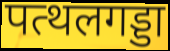
पत्थलगड्डा